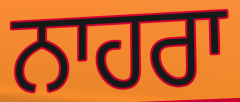
ਨਾਹਰਾ